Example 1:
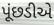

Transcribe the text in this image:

પૂંછડીએ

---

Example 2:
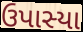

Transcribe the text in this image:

ઉપાસ્યા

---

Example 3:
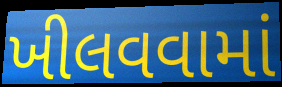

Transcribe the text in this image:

ખીલવવામાં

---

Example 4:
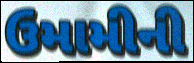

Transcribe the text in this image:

ઉમામીની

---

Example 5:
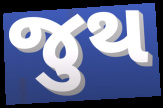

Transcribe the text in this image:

જુથ